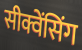
सीक्वेंसिंग